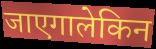
जाएगालेकिन